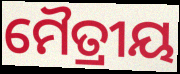
ମୈତ୍ରୀୟ